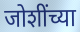
जोशींच्या